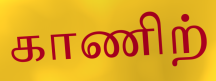
காணிற்